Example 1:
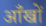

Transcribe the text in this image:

ऑंखों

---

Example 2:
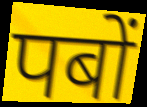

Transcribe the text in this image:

पबों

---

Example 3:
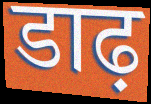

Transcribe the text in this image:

डाढ़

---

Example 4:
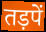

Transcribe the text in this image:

तड़पें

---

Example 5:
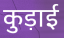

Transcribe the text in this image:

कुड़ाई